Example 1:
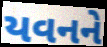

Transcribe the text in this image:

યવનને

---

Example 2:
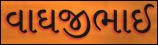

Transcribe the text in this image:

વાઘજીભાઈ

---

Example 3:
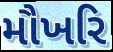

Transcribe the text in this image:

મૌખરિ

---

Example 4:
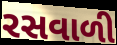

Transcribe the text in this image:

રસવાળી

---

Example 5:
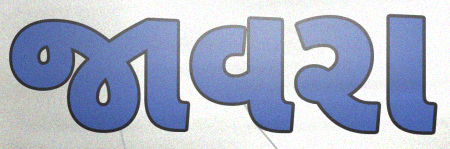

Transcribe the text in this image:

જાવરા